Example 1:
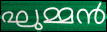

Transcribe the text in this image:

ഘുമ്മൻ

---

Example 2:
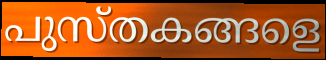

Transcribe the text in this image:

പുസ്തകങ്ങളെ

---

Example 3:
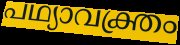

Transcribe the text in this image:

പഥ്യാവക്ത്രം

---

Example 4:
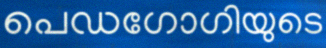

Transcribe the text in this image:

പെഡഗോഗിയുടെ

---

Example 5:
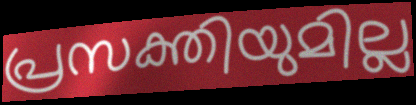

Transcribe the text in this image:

പ്രസക്തിയുമില്ല